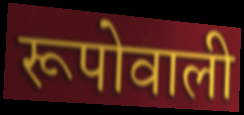
रूपोवाली